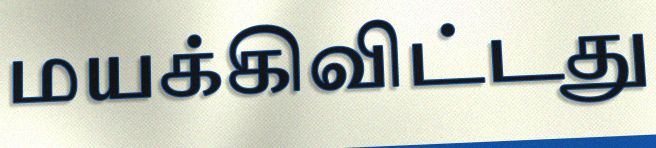
மயக்கிவிட்டது